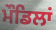
ਮੌਡਿਲਾਂ